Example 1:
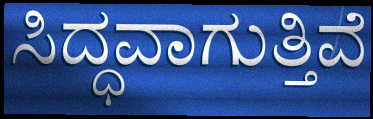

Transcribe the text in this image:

ಸಿದ್ಧವಾಗುತ್ತಿವೆ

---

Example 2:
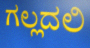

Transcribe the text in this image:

ಗಲ್ಲದಲಿ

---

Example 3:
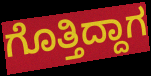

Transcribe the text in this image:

ಗೊತ್ತಿದ್ದಾಗ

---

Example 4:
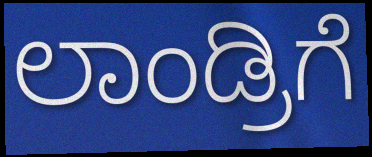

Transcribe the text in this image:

ಲಾಂಡ್ರಿಗೆ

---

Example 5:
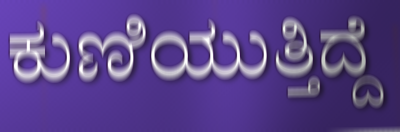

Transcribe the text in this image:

ಕುಣಿಯುತ್ತಿದ್ದೆ